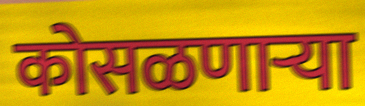
कोसळणार्‍या